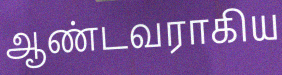
ஆண்டவராகிய